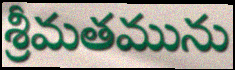
శ్రీమతమును